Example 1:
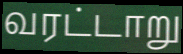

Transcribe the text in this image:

வரட்டாறு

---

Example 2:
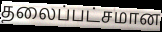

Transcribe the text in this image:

தலைப்பட்சமான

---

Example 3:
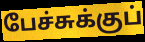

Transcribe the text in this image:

பேச்சுக்குப்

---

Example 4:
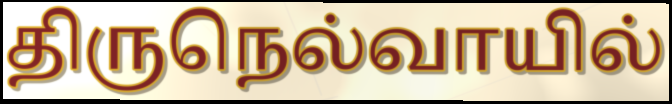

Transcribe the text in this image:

திருநெல்வாயில்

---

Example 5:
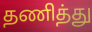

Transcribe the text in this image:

தணித்து